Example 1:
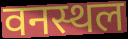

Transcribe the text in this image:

वनस्थल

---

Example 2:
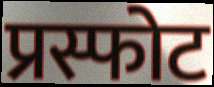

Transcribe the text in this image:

प्रस्फोट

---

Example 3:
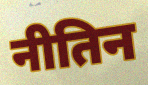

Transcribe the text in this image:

नीतिन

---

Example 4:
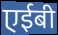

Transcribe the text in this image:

एईबी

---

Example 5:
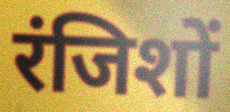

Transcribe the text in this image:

रंजिशों